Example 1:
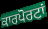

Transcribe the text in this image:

ਕਾਰਪੋਰਟਾਂ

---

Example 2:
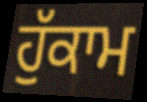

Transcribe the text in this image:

ਹੁੱਕਾਮ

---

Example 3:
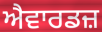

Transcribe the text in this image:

ਐਵਾਰਡਜ਼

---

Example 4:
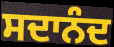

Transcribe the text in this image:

ਸਦਾਨੰਦ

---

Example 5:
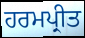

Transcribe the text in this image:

ਹਰਮਪ੍ਰੀਤ